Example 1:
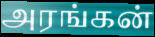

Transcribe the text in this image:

அரங்கன்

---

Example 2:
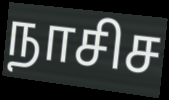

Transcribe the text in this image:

நாசிச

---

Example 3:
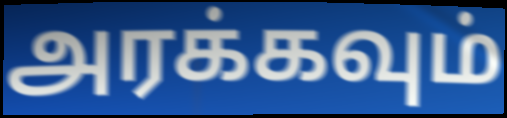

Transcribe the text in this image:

அரக்கவும்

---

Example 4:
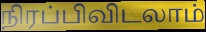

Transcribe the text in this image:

நிரப்பிவிடலாம்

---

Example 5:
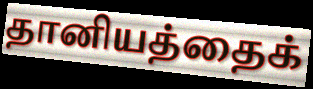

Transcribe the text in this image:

தானியத்தைக்